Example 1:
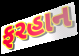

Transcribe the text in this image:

ફરહાન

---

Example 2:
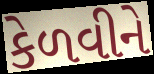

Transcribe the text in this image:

કેળવીને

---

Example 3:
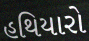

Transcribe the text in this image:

હથિયારો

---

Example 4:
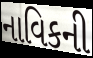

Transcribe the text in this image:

નાવિકની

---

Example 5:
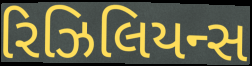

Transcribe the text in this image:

રિઝિલિયન્સ